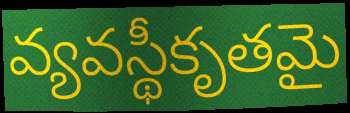
వ్యవస్థీకృతమై